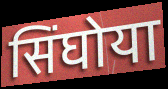
सिंघोया